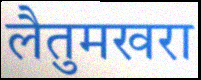
लैतुमखरा